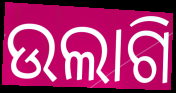
ଉଲାଗି